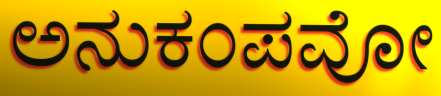
ಅನುಕಂಪವೋ